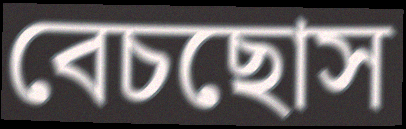
বেচছোস